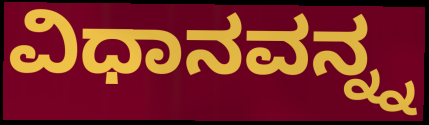
ವಿಧಾನವನ್ನ್ನ